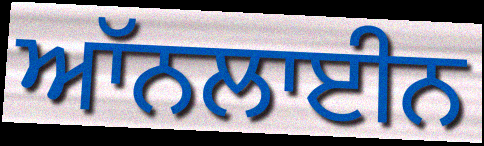
ਆੱਨਲਾਈਨ